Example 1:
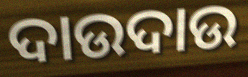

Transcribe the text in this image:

ଦାଉଦାଉ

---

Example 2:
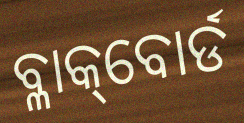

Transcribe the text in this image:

ବ୍ଳାକ୍‌ବୋର୍ଡ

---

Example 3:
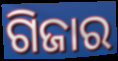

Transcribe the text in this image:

ଗିଜାର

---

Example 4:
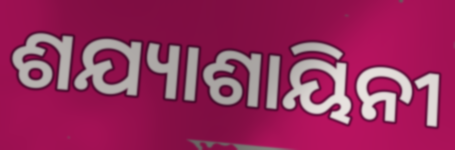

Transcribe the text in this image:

ଶଯ୍ୟାଶାୟିନୀ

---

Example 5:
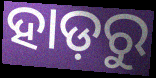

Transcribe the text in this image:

ହାଡ଼ରୁ